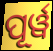
ପୂର୍ୱ